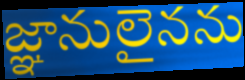
జ్ఞానులైనను